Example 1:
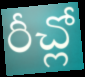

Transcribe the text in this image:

రీచ్లో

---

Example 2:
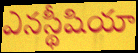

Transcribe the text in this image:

ఎనస్థీషియా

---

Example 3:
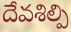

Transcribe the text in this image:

దేవశిల్పి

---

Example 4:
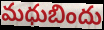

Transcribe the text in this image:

మధుబిందు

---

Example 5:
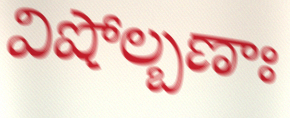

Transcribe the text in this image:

విషోల్బణాః